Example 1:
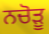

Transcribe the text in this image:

ਨਚੋੜੂ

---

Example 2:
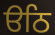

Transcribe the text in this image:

ੳਠਿ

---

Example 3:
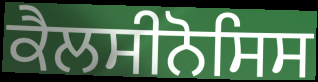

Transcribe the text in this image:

ਕੈਲਸੀਨੋਸਿਸ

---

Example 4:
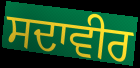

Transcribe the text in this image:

ਸਦਾਵੀਰ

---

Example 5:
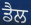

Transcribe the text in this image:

ਡੈਲ